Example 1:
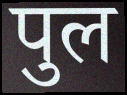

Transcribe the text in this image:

पुल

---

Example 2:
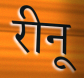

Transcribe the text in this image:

रीनू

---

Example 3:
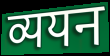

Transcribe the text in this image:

व्ययन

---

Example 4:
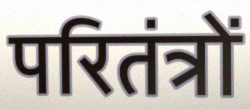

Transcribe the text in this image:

परितंत्रों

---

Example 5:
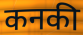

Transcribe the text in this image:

कनकी